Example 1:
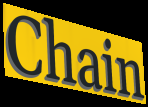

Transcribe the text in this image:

Chain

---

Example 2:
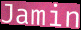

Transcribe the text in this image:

Jamin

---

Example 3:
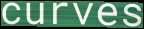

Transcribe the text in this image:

curves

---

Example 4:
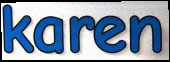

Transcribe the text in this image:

karen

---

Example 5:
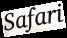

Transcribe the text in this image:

Safari